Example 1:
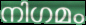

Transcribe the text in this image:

നിഗമം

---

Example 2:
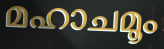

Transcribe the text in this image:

മഹാചമൂം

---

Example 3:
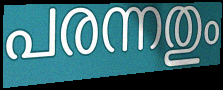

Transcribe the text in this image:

പരന്നതും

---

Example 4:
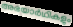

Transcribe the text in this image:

അഭയാർഥികളും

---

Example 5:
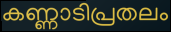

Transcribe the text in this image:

കണ്ണാടിപ്രതലം